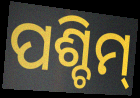
ପଶ୍ଚିମ୍